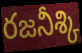
రజనీశ్కి